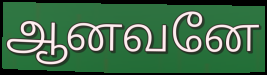
ஆனவனே